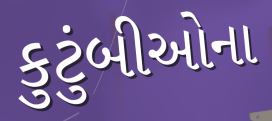
કુટુંબીઓના